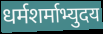
धर्मशर्माभ्युदय